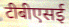
टीबीएसई